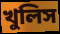
খুলিস